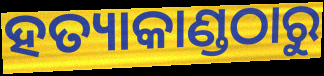
ହତ୍ୟାକାଣ୍ଡଠାରୁ